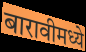
बारावीमध्ये